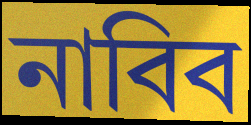
নাবিব